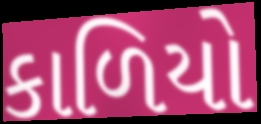
કાળિયો